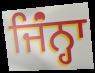
ਜਿੰਂਨ੍ਹਾ